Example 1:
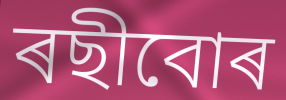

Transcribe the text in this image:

ৰছীবোৰ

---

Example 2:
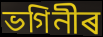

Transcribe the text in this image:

ভগিনীৰ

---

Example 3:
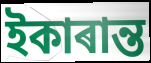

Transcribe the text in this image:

ইকাৰান্ত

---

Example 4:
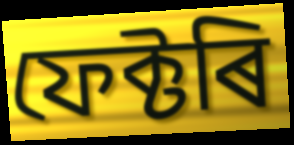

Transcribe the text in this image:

ফেক্টৰি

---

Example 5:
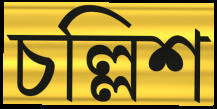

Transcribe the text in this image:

চল্লিশ